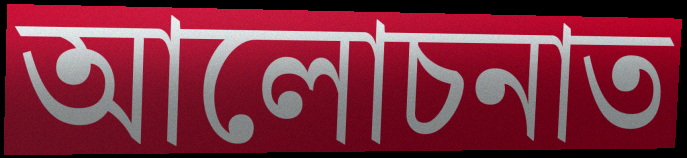
আলোচনাত